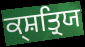
ਕ੍ਸ਼ਤ੍ਰਿਯ